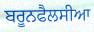
ਬਰੂਨਫੈਲਸੀਆ